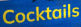
Cocktails